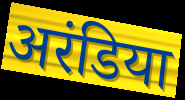
अरंडिया